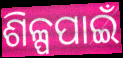
ଶିଳ୍ପପାଇଁ